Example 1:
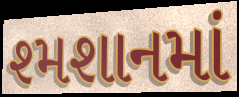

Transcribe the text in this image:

શ્મશાનમાં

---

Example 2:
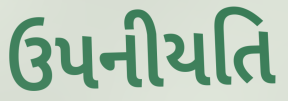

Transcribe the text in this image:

ઉપનીયતિ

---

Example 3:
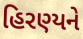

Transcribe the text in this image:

હિરણ્યને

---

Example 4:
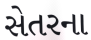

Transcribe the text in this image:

સેતરના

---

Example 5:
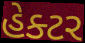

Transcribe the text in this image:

હેક્ટર